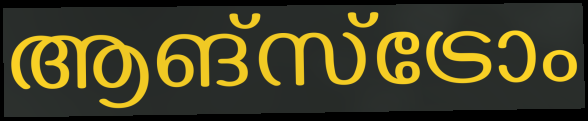
ആങ്സ്ട്രോം